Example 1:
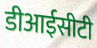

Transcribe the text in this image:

डीआईसीटी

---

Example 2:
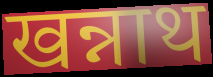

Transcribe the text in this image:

खन्नाथ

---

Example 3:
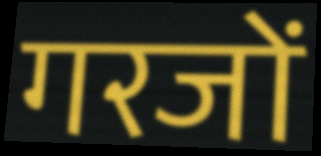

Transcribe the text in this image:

गरजों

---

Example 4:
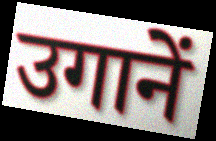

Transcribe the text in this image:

उगानें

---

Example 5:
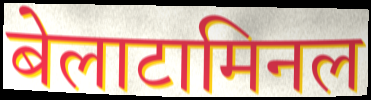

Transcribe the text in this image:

बेलाटामिनल